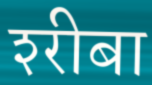
श्रीबा